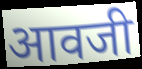
आवजी